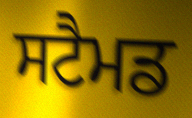
ਸਟੈਮਡ